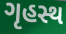
ગૃહસ્થ